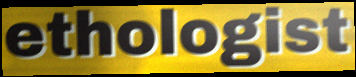
ethologist